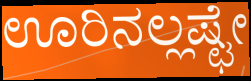
ಊರಿನಲ್ಲಷ್ಟೇ